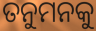
ତନୁମନକୁ